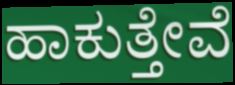
ಹಾಕುತ್ತೇವೆ